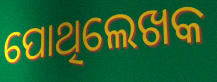
ପୋଥିଲେଖକ